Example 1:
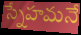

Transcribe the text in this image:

స్నేహమనే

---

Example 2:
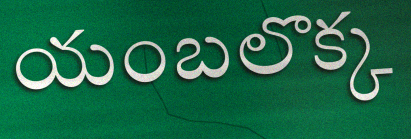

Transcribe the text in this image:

యంబలొక్క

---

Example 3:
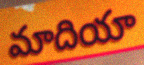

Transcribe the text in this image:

మాదియా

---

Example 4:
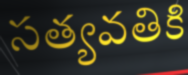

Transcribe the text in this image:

సత్యవతికి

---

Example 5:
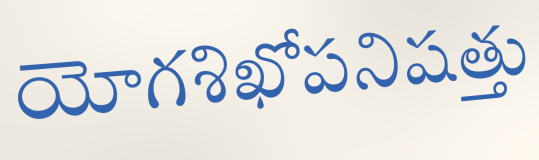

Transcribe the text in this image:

యోగశిఖోపనిషత్తు